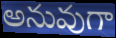
అనువుగా